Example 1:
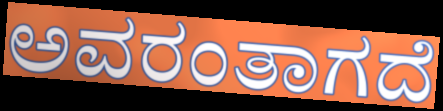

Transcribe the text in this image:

ಅವರಂತಾಗದೆ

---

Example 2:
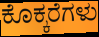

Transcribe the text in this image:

ಕೊಕ್ಕರೆಗಳು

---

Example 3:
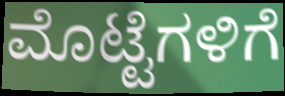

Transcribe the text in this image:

ಮೊಟ್ಟೆಗಳಿಗೆ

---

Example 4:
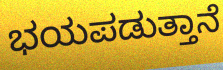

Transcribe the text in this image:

ಭಯಪಡುತ್ತಾನೆ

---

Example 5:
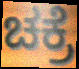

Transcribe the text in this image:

ಚಕ್ರೆ